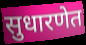
सुधारणेत